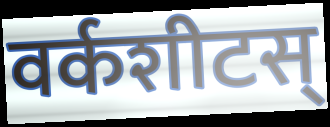
वर्कशीटस्